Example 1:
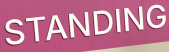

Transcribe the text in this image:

STANDING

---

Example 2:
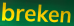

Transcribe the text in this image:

breken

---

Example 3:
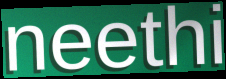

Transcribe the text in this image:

neethi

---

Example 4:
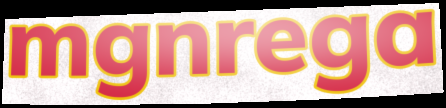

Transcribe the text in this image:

mgnrega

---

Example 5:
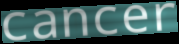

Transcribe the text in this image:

cancer